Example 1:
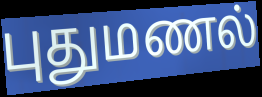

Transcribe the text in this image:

புதுமணல்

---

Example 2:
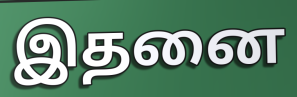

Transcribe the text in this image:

இதனை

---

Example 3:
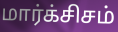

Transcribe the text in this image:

மார்க்சிசம்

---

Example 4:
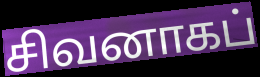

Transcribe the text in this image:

சிவனாகப்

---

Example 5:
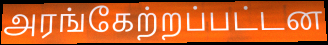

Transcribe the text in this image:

அரங்கேற்றப்பட்டன